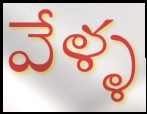
వేళ్ళ